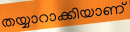
തയ്യാറാക്കിയാണ്